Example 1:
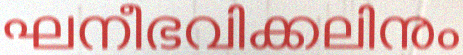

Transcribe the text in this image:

ഘനീഭവിക്കലിനും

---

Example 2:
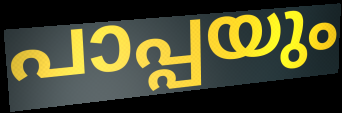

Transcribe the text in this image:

പാപ്പയും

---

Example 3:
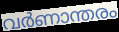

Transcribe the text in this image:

വർണാന്തരം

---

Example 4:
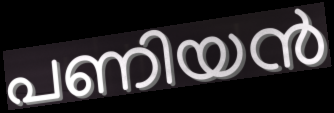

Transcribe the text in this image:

പണിയൻ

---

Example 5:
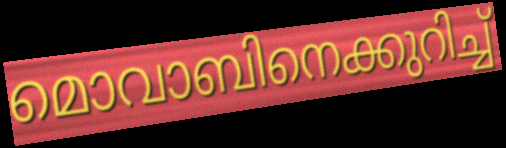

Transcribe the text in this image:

മൊവാബിനെക്കുറിച്ച്